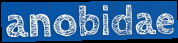
anobidae